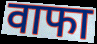
वाफा